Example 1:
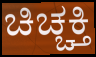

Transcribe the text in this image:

ಚಿಚ್ಚಕ್ತಿ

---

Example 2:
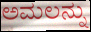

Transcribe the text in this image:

ಅಮಲನ್ನು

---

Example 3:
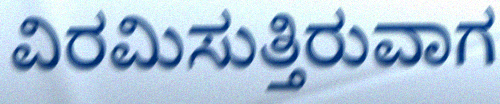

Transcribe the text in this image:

ವಿರಮಿಸುತ್ತಿರುವಾಗ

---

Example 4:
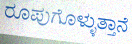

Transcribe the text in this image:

ರೂಪುಗೊಳ್ಳುತ್ತಾನೆ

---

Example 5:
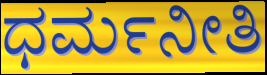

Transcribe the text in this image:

ಧರ್ಮನೀತಿ